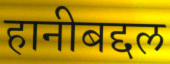
हानीबद्दल